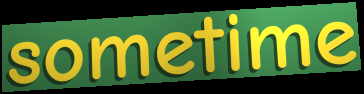
sometime